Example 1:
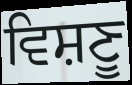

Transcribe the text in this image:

ਵਿਸ਼ਣੂ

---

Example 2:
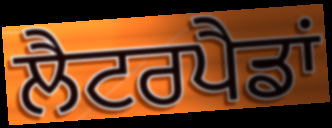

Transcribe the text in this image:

ਲੈਟਰਪੈਡਾਂ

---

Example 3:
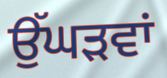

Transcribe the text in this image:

ਉੱਘੜਵਾਂ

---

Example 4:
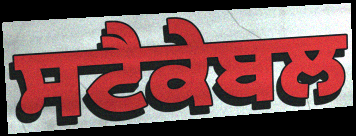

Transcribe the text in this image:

ਸਟੈਕੇਬਲ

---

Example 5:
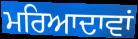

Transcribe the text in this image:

ਮਰਿਆਦਾਵਾਂ